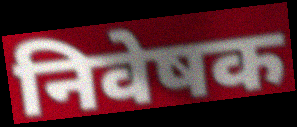
निवेषक